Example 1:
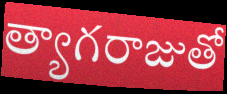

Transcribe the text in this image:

త్యాగరాజుతో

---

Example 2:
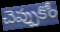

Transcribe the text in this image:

చెప్పుకోం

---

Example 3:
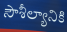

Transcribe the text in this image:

సౌశీల్యానికి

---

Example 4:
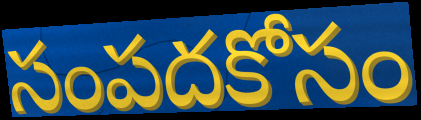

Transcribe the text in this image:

సంపదకోసం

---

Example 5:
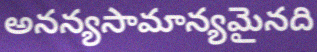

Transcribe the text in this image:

అనన్యసామాన్యమైనది